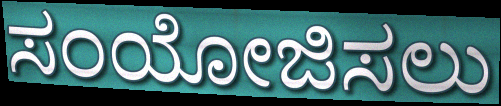
ಸಂಯೋಜಿಸಲು